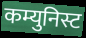
कम्युनिस्ट